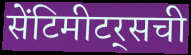
सेंटिमीटर्सची